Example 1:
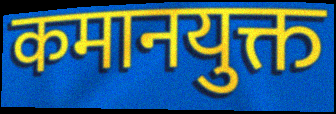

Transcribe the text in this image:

कमानयुक्त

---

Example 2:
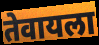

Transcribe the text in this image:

तेवायला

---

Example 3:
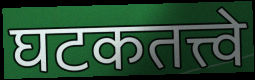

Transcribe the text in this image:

घटकतत्त्वे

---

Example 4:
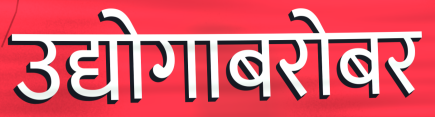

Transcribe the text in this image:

उद्योगाबरोबर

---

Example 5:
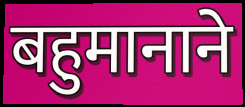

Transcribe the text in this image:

बहुमानाने